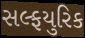
સલ્ફયુરિક